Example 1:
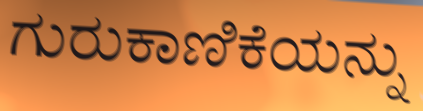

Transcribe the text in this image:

ಗುರುಕಾಣಿಕೆಯನ್ನು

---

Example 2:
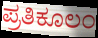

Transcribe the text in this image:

ಪ್ರತಿಕೂಲಂ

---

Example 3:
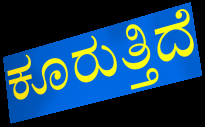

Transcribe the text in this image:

ಕೂರುತ್ತಿದೆ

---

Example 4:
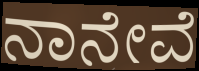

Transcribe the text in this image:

ನಾನೇವೆ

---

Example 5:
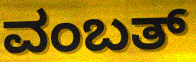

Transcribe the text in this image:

ವಂಬತ್